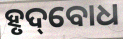
ହୃଦ୍‌ବୋଧ